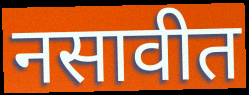
नसावीत